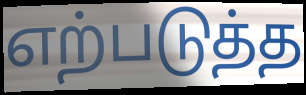
எற்படுத்த